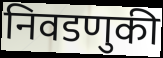
निवडणुकी